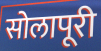
सोलापूरी